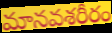
మానవశరీరం